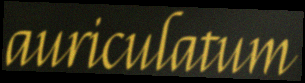
auriculatum